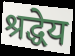
श्रद्धेय